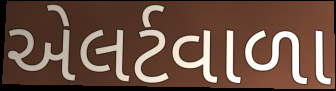
એલર્ટવાળા